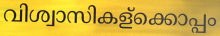
വിശ്വാസികള്ക്കൊപ്പം